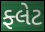
ફ્લેટ